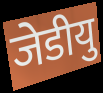
जेडीयु